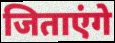
जिताएंगे